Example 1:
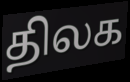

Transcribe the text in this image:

திலக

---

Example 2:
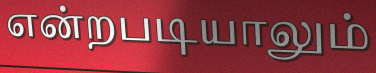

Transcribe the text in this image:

என்றபடியாலும்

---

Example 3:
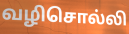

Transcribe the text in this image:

வழிசொல்லி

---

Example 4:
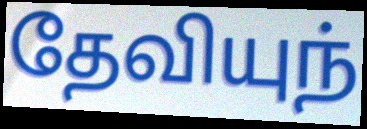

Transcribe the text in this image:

தேவியுந்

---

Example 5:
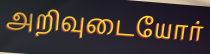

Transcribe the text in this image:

அறிவுடையோர்